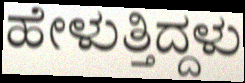
ಹೇಳುತ್ತಿದ್ದಳು